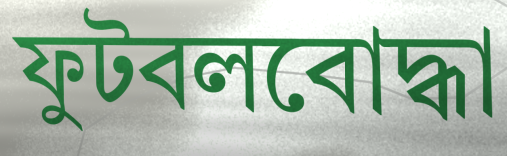
ফুটবলবোদ্ধা